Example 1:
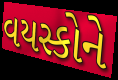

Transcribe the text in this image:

વયસ્કોને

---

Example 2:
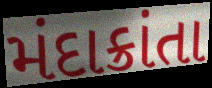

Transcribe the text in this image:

મંદાક્રાંતા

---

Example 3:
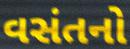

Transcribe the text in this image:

વસંતનો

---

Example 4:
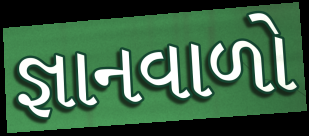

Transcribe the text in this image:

જ્ઞાનવાળો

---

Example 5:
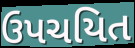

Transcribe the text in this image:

ઉપચયિત